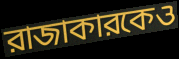
রাজাকারকেও